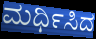
ಮರ್ಧಿಸಿದ